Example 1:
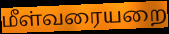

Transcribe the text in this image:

மீள்வரையறை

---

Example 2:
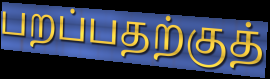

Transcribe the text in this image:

பறப்பதற்குத்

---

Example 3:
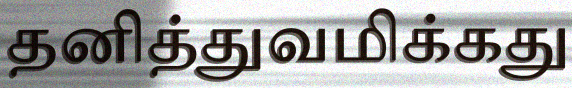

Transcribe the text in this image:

தனித்துவமிக்கது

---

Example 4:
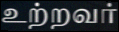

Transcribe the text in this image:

உற்றவர்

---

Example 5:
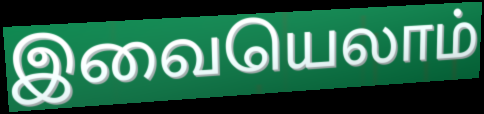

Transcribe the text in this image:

இவையெலாம்